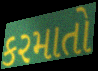
કરમાતો